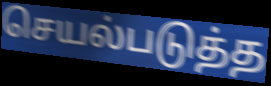
செயல்படுத்த